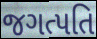
જગત્પતિ